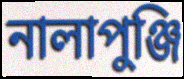
নালাপুঞ্জি